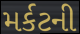
મર્કટની